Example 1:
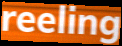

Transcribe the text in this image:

reeling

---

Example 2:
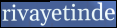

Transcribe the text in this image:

rivayetinde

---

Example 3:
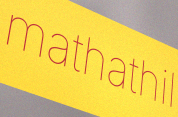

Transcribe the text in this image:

mathathil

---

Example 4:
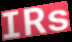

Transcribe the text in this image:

IRs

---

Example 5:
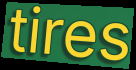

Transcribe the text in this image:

tires